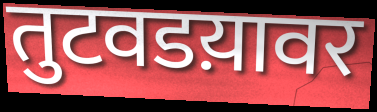
तुटवडय़ावर